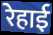
रेहाई